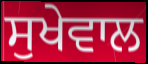
ਸੁਖੇਵਾਲ